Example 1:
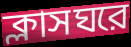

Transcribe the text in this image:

ক্লাসঘরে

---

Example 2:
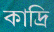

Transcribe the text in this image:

কাদ্রি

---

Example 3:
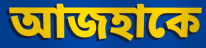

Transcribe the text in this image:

আজহাকে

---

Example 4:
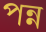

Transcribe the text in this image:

পন্ন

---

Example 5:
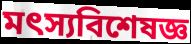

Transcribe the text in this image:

মৎস্যবিশেষজ্ঞ